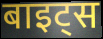
बाइट्स